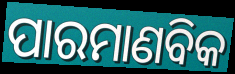
ପାରମାଣବିକ